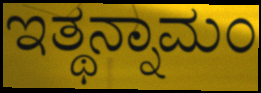
ಇತ್ಥನ್ನಾಮಂ